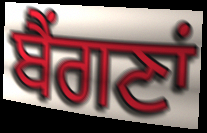
ਬੈਂਗਣਾਂ